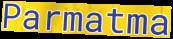
Parmatma